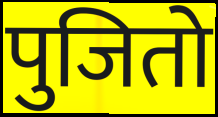
पुजितो